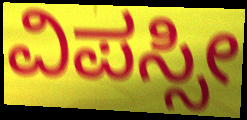
ವಿಪಸ್ಸೀ